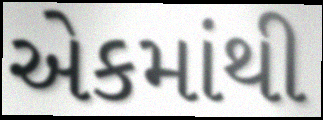
એકમાંથી